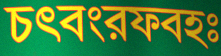
চৎবংরফবহঃ